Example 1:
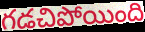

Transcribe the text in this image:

గడచిపోయింది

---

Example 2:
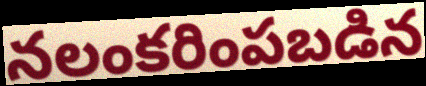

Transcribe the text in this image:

నలంకరింపబడిన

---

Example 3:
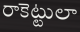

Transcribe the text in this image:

రాకెట్టులా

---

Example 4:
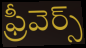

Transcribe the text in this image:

ఫ్రీవెర్స్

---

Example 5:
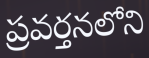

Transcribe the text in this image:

ప్రవర్తనలోని